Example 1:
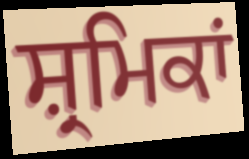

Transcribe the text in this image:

ਸ਼੍ਰਮਿਕਾਂ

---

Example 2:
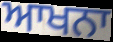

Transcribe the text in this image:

ਆਖਨਾ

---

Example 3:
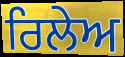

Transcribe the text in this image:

ਰਿਲੇਅ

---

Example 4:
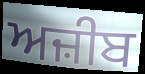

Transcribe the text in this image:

ਅਜ਼ੀਬ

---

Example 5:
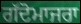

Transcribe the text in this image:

ਗੱਦੋਮਾਜਰਾ